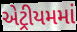
એટ્રીયમમાં